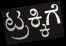
ಟ್ರಕ್ಕಿಗೆ